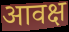
आवक्ष